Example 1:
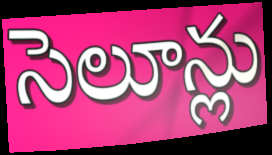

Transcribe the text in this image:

సెలూన్లు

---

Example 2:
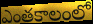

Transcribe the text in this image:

ఎంతకాలంలో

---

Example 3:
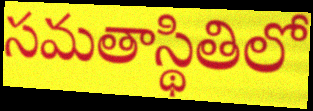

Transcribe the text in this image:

సమతాస్థితిలో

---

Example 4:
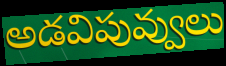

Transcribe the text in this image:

అడవిపువ్వులు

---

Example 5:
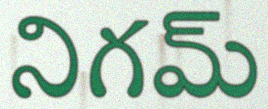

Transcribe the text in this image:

నిగమ్